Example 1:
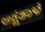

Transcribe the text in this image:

ಅಕ್ಷತಾಳ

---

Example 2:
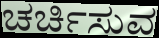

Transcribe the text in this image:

ಚರ್ಚಿಸುವ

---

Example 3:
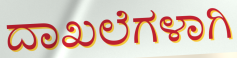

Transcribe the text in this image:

ದಾಖಲೆಗಳಾಗಿ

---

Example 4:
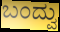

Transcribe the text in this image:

ಬಂದ್ವು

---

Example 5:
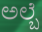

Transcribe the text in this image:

ಅಲ್ಬೆ